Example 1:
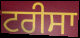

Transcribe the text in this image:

ਟਰੀਸਾ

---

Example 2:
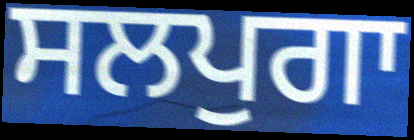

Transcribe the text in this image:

ਸਲਪੁਗਾ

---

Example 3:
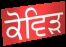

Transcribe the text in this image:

ਕੋਵਿਡ਼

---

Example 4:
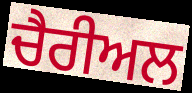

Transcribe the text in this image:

ਚੈਰੀਅਲ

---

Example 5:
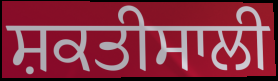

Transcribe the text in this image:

ਸ਼ਕਤੀਸਾਲੀ